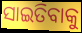
ସାଇତିବାକୁ